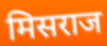
मिसराज